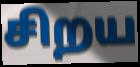
சிறய